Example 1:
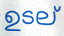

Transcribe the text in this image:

ഉടല്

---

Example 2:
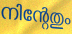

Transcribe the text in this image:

നിന്റേതും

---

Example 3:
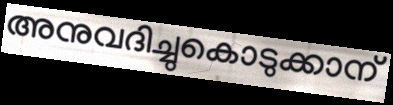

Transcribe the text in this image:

അനുവദിച്ചുകൊടുക്കാന്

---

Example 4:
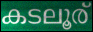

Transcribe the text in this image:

കടലൂര്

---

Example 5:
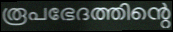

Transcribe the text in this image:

രൂപഭേദത്തിന്റെ